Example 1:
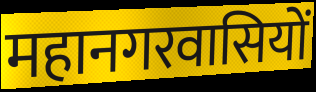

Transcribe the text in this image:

महानगरवासियों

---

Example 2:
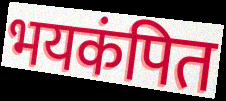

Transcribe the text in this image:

भयकंपित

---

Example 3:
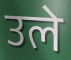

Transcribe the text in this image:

उले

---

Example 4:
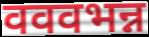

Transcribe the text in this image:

वववभन्न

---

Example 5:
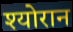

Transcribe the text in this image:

श्योरान